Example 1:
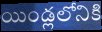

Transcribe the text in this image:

యిండ్లలోనికి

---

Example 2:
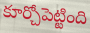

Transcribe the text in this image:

కూర్చోపెట్టింది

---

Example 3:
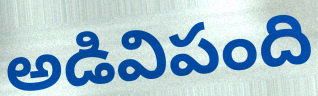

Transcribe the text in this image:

అడివిపంది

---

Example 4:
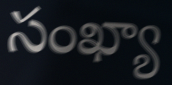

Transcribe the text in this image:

సంఖ్యా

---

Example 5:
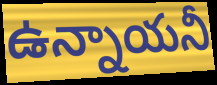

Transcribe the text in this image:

ఉన్నాయనీ